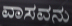
ವಾಸವನು